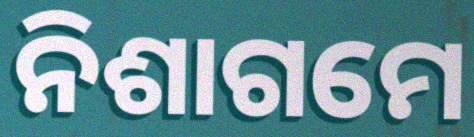
ନିଶାଗମେ